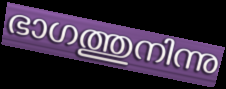
ഭാഗത്തുനിന്നു